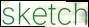
sketch